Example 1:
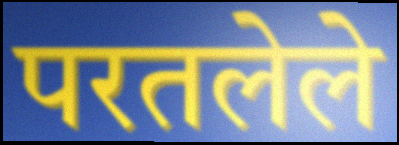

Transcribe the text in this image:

परतलेले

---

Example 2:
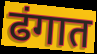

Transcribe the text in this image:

ढंगात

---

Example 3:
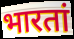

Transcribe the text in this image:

भारतां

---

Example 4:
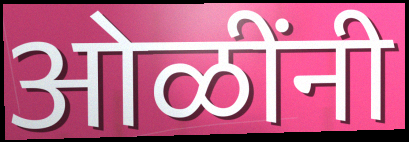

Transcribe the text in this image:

ओळींनी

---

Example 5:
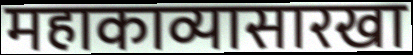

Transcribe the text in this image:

महाकाव्यासारखा